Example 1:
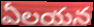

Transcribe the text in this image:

ఏలయన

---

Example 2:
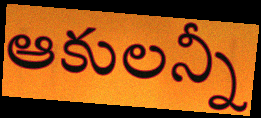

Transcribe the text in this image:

ఆకులన్నీ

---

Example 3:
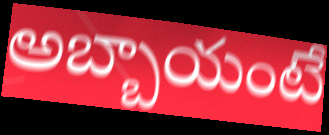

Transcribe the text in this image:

అబ్బాయంటే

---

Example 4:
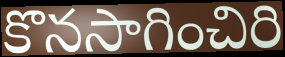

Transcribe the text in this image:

కొనసాగించిరి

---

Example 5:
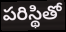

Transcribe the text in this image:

పరిస్థితో